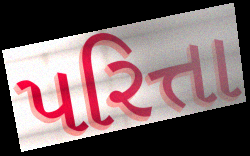
પરિત્તા